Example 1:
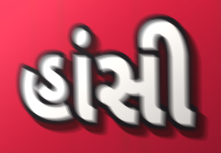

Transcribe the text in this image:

હાંસી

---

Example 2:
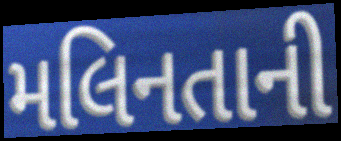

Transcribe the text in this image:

મલિનતાની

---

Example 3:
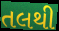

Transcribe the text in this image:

તલથી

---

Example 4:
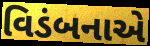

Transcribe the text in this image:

વિડંબનાએ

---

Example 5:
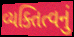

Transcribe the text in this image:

વ્યક્તિત્વનું